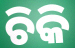
ଚିକି